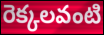
రెక్కలవంటి